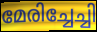
മേരിച്ചേച്ചി